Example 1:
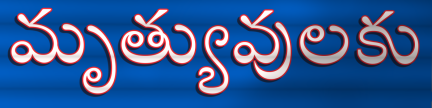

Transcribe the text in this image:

మృత్యువులకు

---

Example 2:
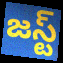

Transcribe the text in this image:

జస్ట్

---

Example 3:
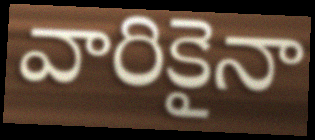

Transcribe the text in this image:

వారికైనా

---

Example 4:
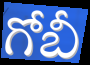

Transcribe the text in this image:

గోబీ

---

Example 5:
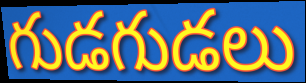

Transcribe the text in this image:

గుడగుడలు